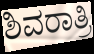
ಶಿವರಾತ್ರಿ